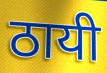
ठायी